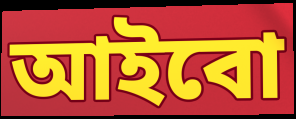
আইবো